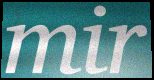
mir